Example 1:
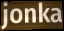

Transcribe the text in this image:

jonka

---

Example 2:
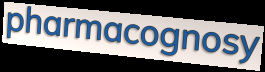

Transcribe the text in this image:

pharmacognosy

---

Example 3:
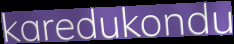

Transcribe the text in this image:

karedukondu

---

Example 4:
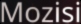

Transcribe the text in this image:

Mozisi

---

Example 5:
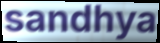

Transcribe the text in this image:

sandhya